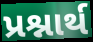
પ્રશ્નાર્થ